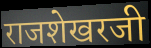
राजशेखरजी